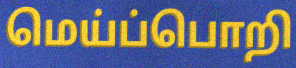
மெய்ப்பொறி